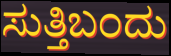
ಸುತ್ತಿಬಂದು